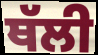
ਥੱਲੀ